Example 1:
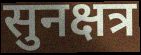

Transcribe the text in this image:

सुनक्षत्र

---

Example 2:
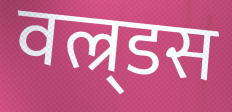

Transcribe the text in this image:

वल्र्डस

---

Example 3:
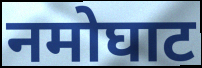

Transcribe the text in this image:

नमोघाट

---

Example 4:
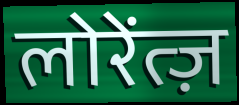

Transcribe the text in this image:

लोरेंत्ज़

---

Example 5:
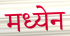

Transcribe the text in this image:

मध्येन